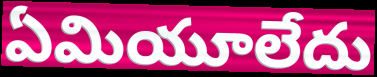
ఏమియూలేదు